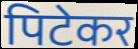
पिटेकर